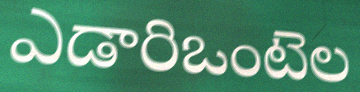
ఎడారిఒంటెల